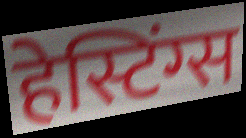
हेस्टिंग्स